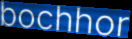
bochhor